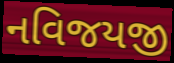
નવિજયજી